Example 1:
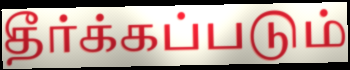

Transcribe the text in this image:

தீர்க்கப்படும்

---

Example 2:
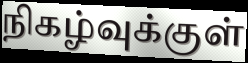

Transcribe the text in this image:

நிகழ்வுக்குள்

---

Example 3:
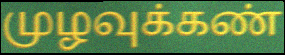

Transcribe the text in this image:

முழவுக்கண்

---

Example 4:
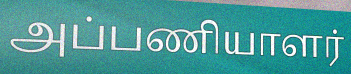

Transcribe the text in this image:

அப்பணியாளர்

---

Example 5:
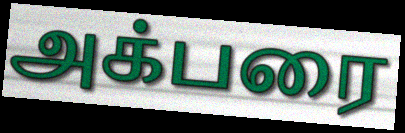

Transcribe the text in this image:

அக்பரை